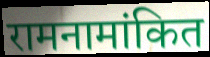
रामनामांकित